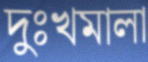
দুঃখমালা